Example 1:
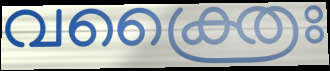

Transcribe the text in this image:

വക്ത്രൈഃ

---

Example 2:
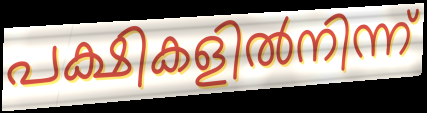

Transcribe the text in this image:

പക്ഷികളിൽനിന്ന്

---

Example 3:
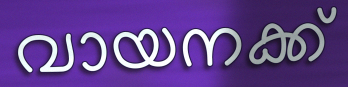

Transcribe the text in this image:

വായനക്ക്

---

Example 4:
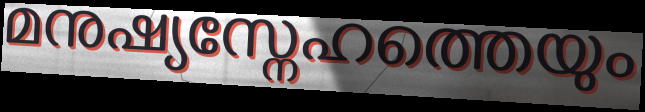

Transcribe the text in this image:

മനുഷ്യസ്നേഹത്തെയും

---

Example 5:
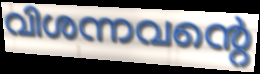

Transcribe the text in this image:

വിശന്നവന്റെ